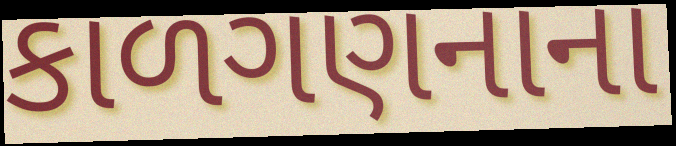
કાળગણનાના